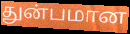
துன்பமான